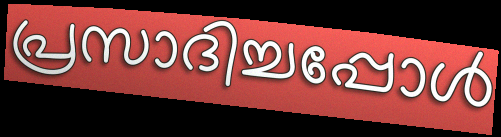
പ്രസാദിച്ചപ്പോൾ